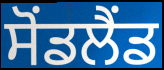
ਸੋਂਡਲੈਂਡ